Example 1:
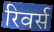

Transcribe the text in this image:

रिवर्स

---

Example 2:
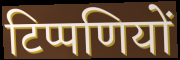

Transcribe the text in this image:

टिप्पणियों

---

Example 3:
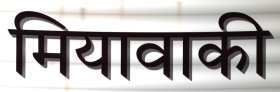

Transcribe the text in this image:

मियावाकी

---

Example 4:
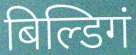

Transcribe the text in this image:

बिल्डिगं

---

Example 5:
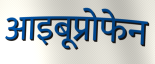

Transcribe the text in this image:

आइबूप्रोफेन